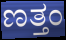
ಣತ್ತಂ